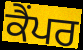
ਕੈਂਪਰ